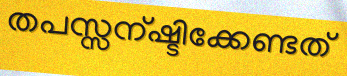
തപസ്സന്ഷ്ടിക്കേണ്ടത്